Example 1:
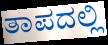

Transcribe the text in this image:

ತಾಪದಲ್ಲಿ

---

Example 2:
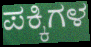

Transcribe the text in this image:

ಪಕ್ಕಿಗಳ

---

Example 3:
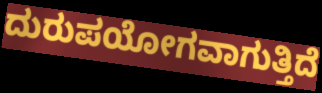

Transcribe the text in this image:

ದುರುಪಯೋಗವಾಗುತ್ತಿದೆ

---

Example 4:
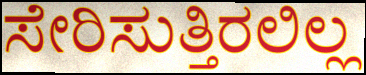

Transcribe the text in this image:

ಸೇರಿಸುತ್ತಿರಲಿಲ್ಲ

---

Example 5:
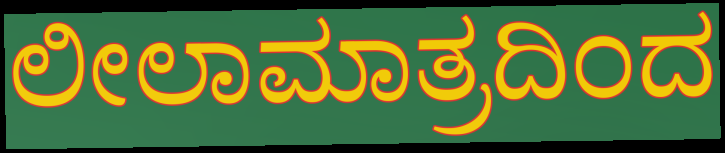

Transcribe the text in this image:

ಲೀಲಾಮಾತ್ರದಿಂದ